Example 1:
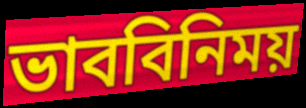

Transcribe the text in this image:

ভাববিনিময়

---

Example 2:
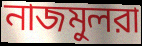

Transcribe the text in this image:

নাজমুলরা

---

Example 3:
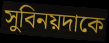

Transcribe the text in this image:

সুবিনয়দাকে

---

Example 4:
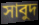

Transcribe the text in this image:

সাবুদ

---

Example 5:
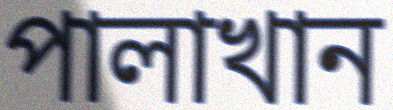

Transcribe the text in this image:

পালাখান